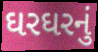
ઘરઘરનું